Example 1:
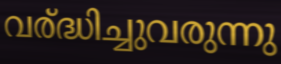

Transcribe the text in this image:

വര്ദ്ധിച്ചുവരുന്നു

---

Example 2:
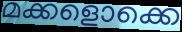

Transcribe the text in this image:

മക്കളൊക്കെ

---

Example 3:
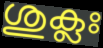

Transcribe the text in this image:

ശുക്ലഃ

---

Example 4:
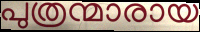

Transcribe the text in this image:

പുത്രന്മാരായ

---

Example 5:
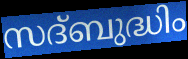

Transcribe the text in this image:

സദ്ബുദ്ധിം